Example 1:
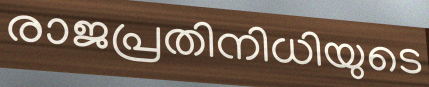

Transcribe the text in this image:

രാജപ്രതിനിധിയുടെ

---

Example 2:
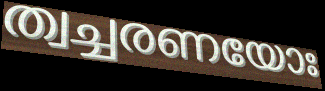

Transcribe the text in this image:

ത്വച്ചരണയോഃ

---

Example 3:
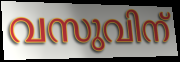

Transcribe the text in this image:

വസുവിന്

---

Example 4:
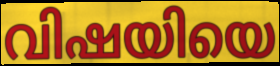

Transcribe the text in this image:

വിഷയിയെ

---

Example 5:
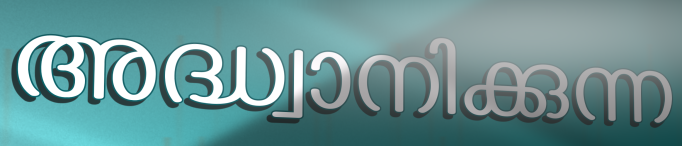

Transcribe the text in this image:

അദ്ധ്വാനിക്കുന്ന